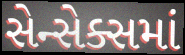
સેન્સેક્સમાં